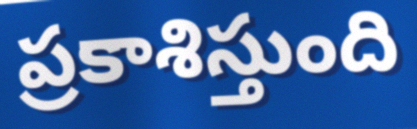
ప్రకాశిస్తుంది